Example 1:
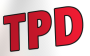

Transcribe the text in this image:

TPD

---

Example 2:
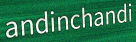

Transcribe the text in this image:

andinchandi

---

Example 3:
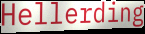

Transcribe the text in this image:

Hellerding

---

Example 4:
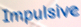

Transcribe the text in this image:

Impulsive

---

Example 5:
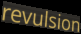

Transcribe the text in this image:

revulsion